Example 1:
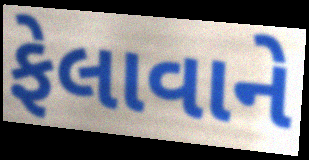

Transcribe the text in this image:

ફેલાવાને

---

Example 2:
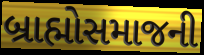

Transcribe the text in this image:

બ્રાહ્મોસમાજની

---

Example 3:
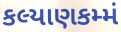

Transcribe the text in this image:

કલ્યાણકમ્મં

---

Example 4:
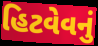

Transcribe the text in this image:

હિટવેવનું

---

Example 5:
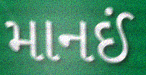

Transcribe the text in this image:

માનઈં